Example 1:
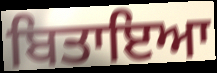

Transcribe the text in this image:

ਬਿਤਾਇਆ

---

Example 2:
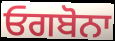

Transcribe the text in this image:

ਓਗਬੋਨਾ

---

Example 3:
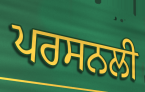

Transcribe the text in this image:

ਪਰਸਨਲੀ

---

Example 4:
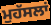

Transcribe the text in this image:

ਮੁਹੱਸਲਾਂ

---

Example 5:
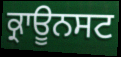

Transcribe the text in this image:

ਕ੍ਰਾਊਨਸਟ